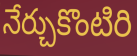
నేర్చుకొంటిరి